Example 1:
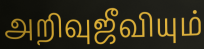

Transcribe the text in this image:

அறிவுஜீவியும்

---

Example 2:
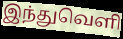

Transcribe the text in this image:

இந்துவெளி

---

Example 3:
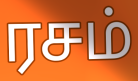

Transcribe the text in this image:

ரசம்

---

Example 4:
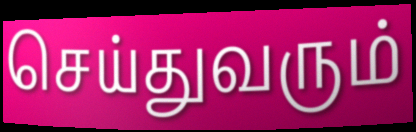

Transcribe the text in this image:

செய்துவரும்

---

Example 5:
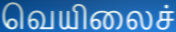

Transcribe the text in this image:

வெயிலைச்